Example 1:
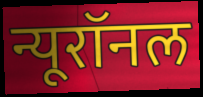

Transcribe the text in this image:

न्यूरॉनल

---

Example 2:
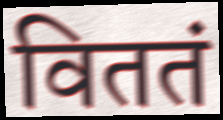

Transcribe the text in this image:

विततं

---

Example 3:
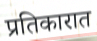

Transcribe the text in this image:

प्रतिकारात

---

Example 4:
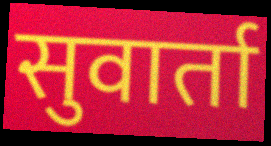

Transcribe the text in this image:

सुवार्ता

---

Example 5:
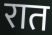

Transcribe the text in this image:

रात